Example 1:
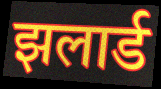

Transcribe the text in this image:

झलार्ड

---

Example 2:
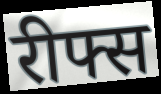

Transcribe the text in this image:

रीफ्स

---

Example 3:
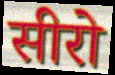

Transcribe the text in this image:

सीरो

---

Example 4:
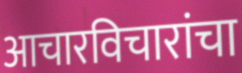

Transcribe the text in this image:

आचारविचारांचा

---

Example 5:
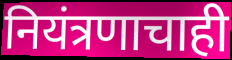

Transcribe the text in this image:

नियंत्रणाचाही